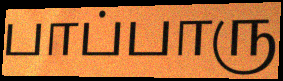
பாப்பாரு